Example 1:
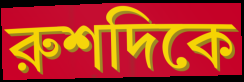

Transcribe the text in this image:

রুশদিকে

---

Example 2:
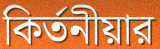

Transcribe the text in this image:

কির্তনীয়ার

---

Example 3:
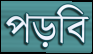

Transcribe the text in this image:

পড়বি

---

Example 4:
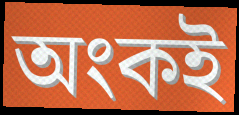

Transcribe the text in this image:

অংকই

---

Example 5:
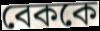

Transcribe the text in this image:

বেককে